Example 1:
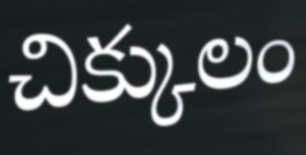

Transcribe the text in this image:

చిక్కులం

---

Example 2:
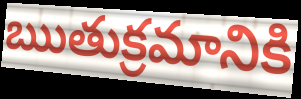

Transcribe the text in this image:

ఋతుక్రమానికి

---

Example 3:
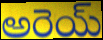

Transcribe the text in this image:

అరెయ్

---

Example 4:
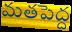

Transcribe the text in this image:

మతపెద్ద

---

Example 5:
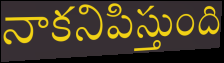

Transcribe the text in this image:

నాకనిపిస్తుంది